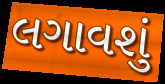
લગાવશું